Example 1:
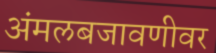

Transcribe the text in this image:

अंमलबजावणीवर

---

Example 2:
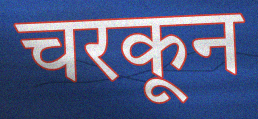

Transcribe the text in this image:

चरकून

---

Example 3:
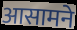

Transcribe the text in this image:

आसामने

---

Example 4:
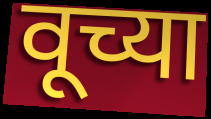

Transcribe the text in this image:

वूच्या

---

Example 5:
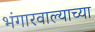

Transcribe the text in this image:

भंगारवाल्याच्या